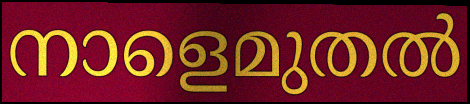
നാളെമുതൽ